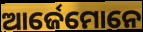
ଆର୍ଜେମୋନେ